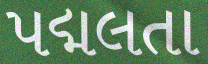
પદ્મલતા